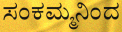
ಸಂಕಮ್ಮನಿಂದ